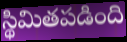
స్థిమితపడింది